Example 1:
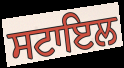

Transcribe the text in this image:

ਸਟਾਇਲ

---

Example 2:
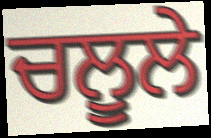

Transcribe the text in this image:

ਚਲੂਲੇ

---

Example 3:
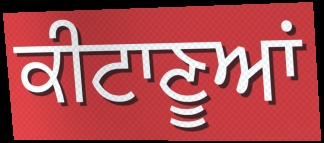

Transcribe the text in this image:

ਕੀਟਾਣੂਆਂ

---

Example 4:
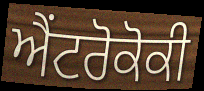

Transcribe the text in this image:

ਐਂਟਰੋਕੋਕੀ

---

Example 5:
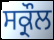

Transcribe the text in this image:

ਸਕ੍ਰੌਲ